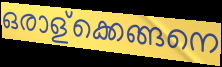
ഒരാള്ക്കെങ്ങനെ